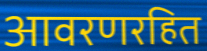
आवरणरहित